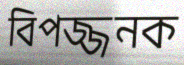
বিপজ্জনক